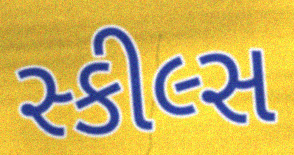
સ્કીલ્સ